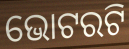
ଭୋଟରଟି